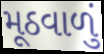
મૂઠવાળું